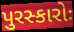
પુરસ્કારોઃ